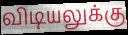
விடியலுக்கு